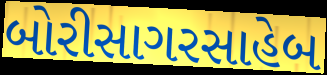
બોરીસાગરસાહેબ